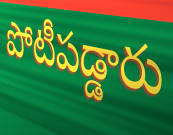
పోటీపడ్డారు